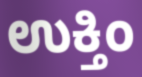
ಉಕ್ತಿಂ